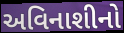
અવિનાશીનો